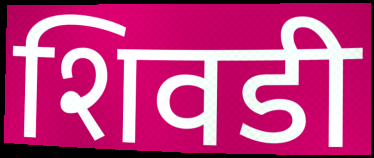
शिवडी